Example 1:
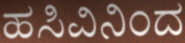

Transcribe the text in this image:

ಹಸಿವಿನಿಂದ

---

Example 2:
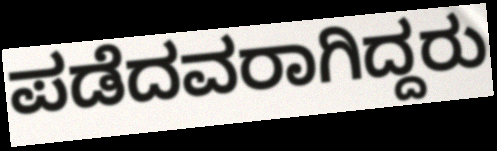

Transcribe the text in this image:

ಪಡೆದವರಾಗಿದ್ದರು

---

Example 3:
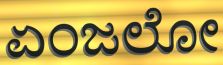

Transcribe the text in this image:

ಏಂಜಲೋ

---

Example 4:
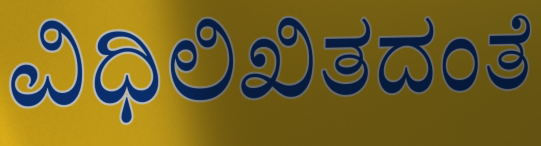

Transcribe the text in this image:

ವಿಧಿಲಿಖಿತದಂತೆ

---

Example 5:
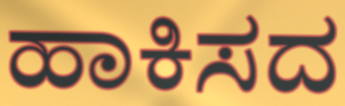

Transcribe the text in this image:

ಹಾಕಿಸದ